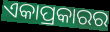
ଏକାପ୍ରକାରର